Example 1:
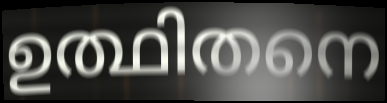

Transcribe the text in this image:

ഉത്ഥിതനെ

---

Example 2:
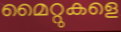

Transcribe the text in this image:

മൈറ്റുകളെ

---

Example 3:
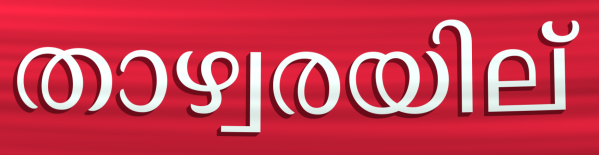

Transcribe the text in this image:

താഴ്വരയില്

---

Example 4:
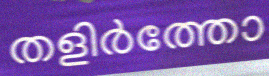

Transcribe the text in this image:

തളിർത്തോ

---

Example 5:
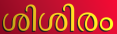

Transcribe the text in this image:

ശിശിരം